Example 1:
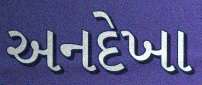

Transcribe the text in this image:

અનદેખા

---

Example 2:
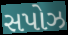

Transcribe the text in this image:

સપોઝ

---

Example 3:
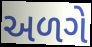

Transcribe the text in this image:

અળગે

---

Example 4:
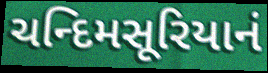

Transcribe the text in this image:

ચન્દિમસૂરિયાનં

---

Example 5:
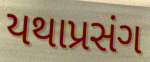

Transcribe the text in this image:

યથાપ્રસંગ